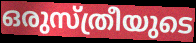
ഒരുസ്ത്രീയുടെ